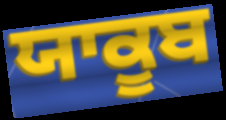
ਯਾਕੂਬ